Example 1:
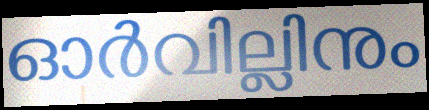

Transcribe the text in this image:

ഓർവില്ലിനും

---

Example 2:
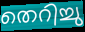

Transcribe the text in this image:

തെറിച്ചു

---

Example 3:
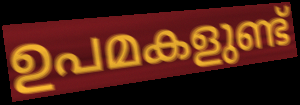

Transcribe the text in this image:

ഉപമകളുണ്ട്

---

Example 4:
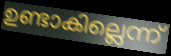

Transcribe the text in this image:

ഉണ്ടാകില്ലെന്ന്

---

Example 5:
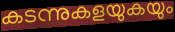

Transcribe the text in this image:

കടന്നുകളയുകയും